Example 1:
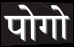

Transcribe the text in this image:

पोगो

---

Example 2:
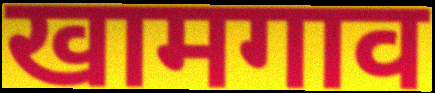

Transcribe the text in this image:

खामगाव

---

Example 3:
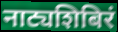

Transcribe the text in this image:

नाट्यशिबिरं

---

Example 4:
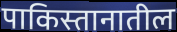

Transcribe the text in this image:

पाकिस्तानातील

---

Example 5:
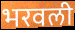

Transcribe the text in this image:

भरवली